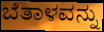
ಬೆತಾಳವನ್ನು